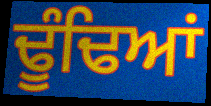
ਢੂੰਢਿਆਂ